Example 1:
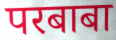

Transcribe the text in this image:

परबाबा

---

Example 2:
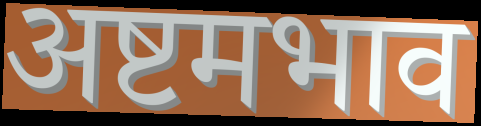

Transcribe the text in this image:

अष्टमभाव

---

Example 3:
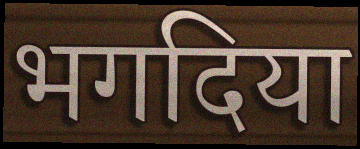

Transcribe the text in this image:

भगदिया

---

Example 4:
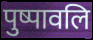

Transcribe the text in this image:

पुष्पावलि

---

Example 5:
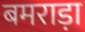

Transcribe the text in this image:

बमराड़ा